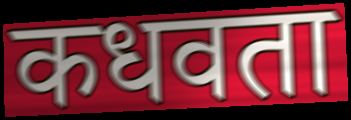
कधवता